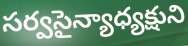
సర్వసైన్యాధ్యక్షుని